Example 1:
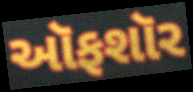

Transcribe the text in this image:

ઑફશૉર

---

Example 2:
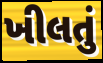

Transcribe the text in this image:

ખીલતું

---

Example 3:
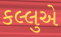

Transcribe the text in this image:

કલ્લુએ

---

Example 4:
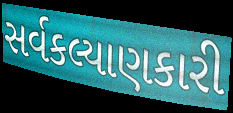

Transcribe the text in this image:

સર્વકલ્યાણકારી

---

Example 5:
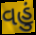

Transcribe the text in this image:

વહું